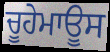
ਚੂਹੇਮਾਊਸ